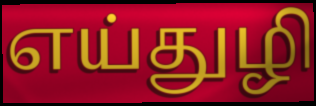
எய்துழி